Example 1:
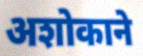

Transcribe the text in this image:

अशोकाने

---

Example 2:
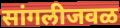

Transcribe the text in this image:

सांगलीजवळ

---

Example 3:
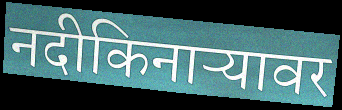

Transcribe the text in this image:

नदीकिनाऱ्यावर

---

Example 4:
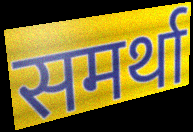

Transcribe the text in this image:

समर्था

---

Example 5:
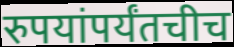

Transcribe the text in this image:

रुपयांपर्यंतचीच